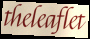
theleaflet